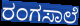
ರಂಗಸಾಲೆ